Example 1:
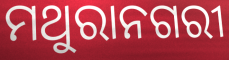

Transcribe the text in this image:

ମଥୁରାନଗରୀ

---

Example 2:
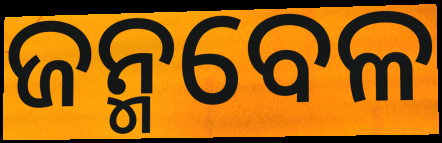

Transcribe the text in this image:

ଜନ୍ମବେଳ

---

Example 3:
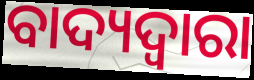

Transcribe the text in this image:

ବାଦ୍ୟଦ୍ୱାରା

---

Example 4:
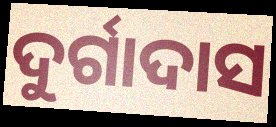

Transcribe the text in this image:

ଦୁର୍ଗାଦାସ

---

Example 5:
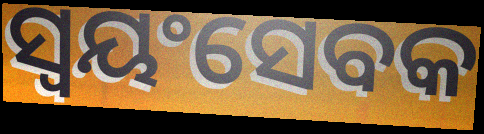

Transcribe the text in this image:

ସ୍ୱୟଂସେବକ